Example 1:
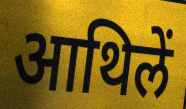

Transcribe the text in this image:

आथिलें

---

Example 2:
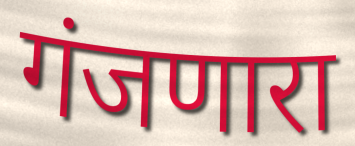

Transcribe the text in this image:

गंजणारा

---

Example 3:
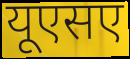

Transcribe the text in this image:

यूएसए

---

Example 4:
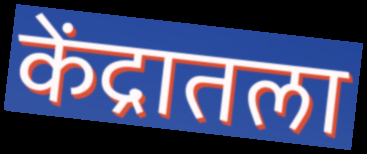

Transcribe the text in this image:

केंद्रातला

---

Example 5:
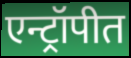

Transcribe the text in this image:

एन्ट्रॉपीत